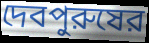
দেবপুরুষের